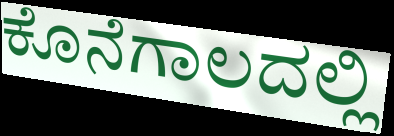
ಕೊನೆಗಾಲದಲ್ಲಿ